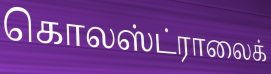
கொலஸ்ட்ராலைக்